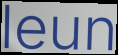
leun